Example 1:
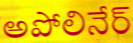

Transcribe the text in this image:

అపోలినేర్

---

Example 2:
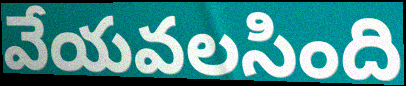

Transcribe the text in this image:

వేయవలసింది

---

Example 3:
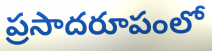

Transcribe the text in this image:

ప్రసాదరూపంలో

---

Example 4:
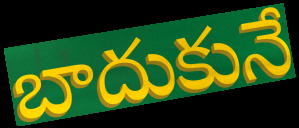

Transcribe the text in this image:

బాదుకునే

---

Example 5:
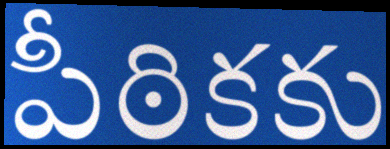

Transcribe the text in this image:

పీఠికకు